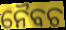
ନୈବଚ